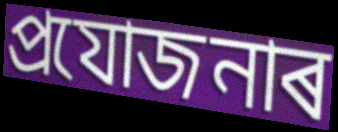
প্ৰযোজনাৰ